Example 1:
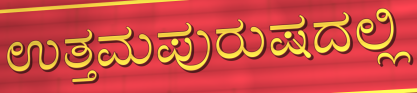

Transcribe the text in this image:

ಉತ್ತಮಪುರುಷದಲ್ಲಿ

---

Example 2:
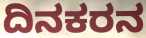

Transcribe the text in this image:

ದಿನಕರನ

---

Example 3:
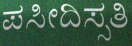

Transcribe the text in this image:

ಪಸೀದಿಸ್ಸತಿ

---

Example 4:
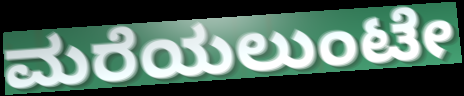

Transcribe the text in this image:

ಮರೆಯಲುಂಟೇ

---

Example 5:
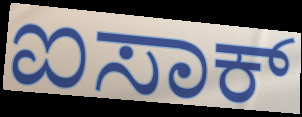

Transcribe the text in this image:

ಐಸಾಕ್